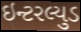
ઇન્ટરલ્યુડ